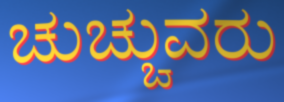
ಚುಚ್ಚುವರು